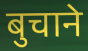
बुचाने